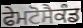
ਫੇਮਟੋਸੈਕੰਡ